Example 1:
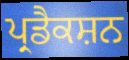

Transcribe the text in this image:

ਪ੍ਰਡੈਕਸ਼ਨ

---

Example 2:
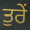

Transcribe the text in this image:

ਤੁਰੇਂ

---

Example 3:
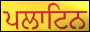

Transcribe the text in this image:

ਪਲਾਟਿਨ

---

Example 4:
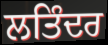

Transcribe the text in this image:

ਲਤਿੰਦਰ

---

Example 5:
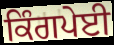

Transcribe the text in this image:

ਕਿੰਗਪੇਈ